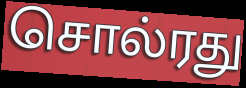
சொல்ரது